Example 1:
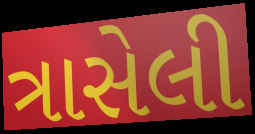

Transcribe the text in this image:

ત્રાસેલી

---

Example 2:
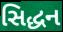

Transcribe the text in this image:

સિદ્ધન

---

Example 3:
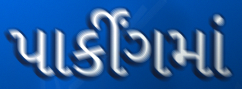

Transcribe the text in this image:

પાર્કીંગમાં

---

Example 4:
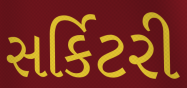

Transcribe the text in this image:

સર્કિટરી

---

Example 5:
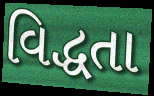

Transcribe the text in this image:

વિદ્ધતા